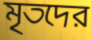
মৃতদের